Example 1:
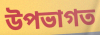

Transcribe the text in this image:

উপভাগত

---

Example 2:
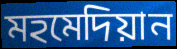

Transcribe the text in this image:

মহমেদিয়ান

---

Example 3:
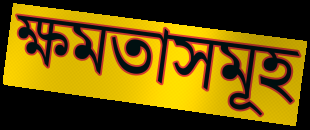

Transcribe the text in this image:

ক্ষমতাসমূহ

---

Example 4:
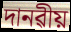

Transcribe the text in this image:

দানৱীয়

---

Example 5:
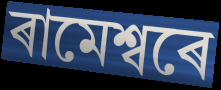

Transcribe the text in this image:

ৰামেশ্বৰে